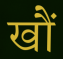
खौं